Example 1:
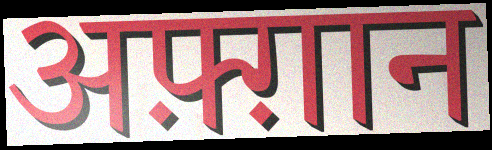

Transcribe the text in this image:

अफ़्ग़ान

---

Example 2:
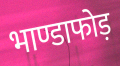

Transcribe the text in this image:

भाण्डाफोड़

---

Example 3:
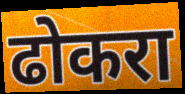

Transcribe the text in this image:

ढोकरा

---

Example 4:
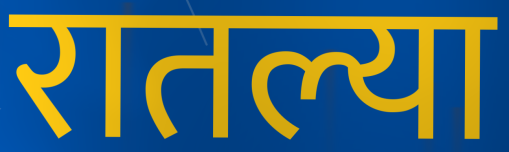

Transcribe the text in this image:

रातल्या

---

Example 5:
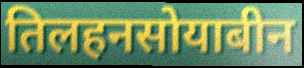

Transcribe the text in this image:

तिलहनसोयाबीन